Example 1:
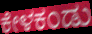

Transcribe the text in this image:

ಕೇಳಕಂಡು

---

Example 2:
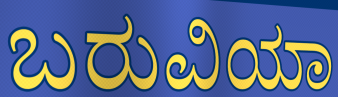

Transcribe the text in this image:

ಬರುವಿಯಾ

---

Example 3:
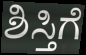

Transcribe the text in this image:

ಶಿಸ್ತಿಗೆ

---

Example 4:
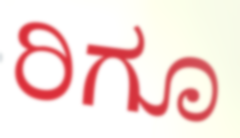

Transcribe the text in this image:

ರಿಗೂ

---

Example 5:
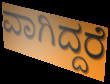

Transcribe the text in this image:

ವಾಗಿದ್ದರೆ